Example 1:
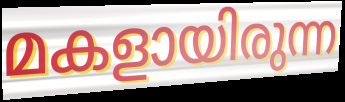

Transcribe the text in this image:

മകളായിരുന്ന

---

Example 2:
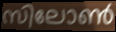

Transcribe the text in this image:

സിലോൺ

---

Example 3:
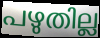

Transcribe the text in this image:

പഴുതില്ല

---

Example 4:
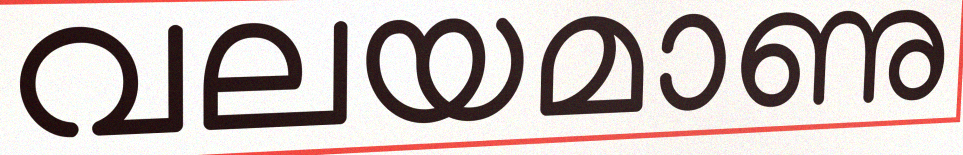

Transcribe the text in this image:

വലയമാണു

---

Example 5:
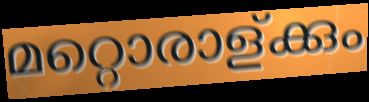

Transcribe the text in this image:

മറ്റൊരാള്ക്കും